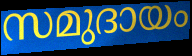
സമുദായം